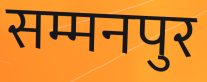
सम्मनपुर